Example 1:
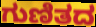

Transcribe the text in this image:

ಗುಣಿತದ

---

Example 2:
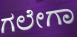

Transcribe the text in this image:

ಗಲೇಗಾ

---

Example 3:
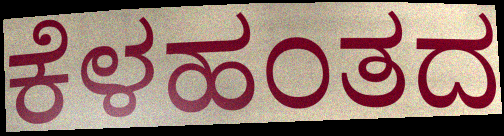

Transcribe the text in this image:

ಕೆಳಹಂತದ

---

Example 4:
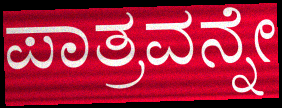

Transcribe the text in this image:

ಪಾತ್ರವನ್ನೇ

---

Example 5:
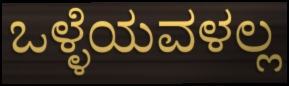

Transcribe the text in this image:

ಒಳ್ಳೆಯವಳಲ್ಲ